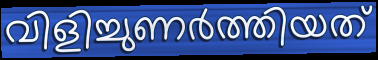
വിളിച്ചുണർത്തിയത്